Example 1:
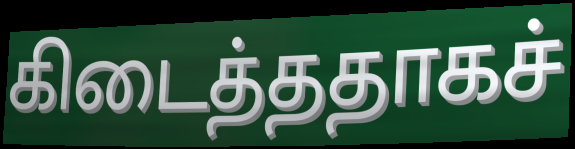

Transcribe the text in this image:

கிடைத்ததாகச்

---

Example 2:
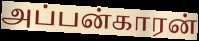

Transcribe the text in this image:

அப்பன்காரன்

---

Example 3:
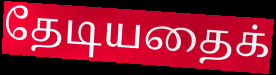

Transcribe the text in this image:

தேடியதைக்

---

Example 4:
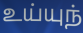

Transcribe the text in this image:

உய்யுந்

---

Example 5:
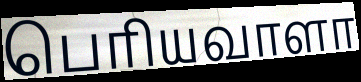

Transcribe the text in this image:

பெரியவாளா